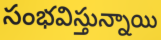
సంభవిస్తున్నాయి